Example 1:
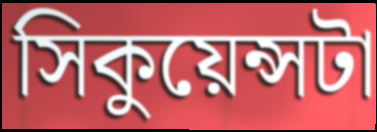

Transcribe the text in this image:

সিকুয়েন্সটা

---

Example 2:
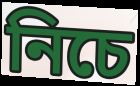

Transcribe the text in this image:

নিচে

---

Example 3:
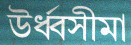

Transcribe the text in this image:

উর্ধ্বসীমা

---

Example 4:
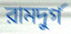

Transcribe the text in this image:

রামদুর্গ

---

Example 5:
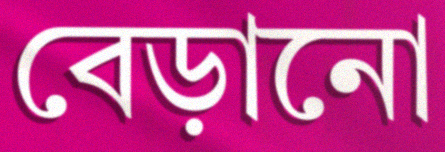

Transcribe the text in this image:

বেড়ানো